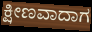
ಕ್ಷೀಣವಾದಾಗ